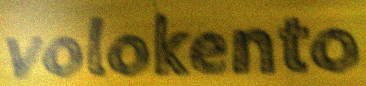
volokento